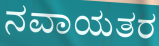
ನವಾಯತರ